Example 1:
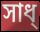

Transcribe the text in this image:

সাধ্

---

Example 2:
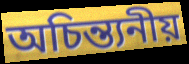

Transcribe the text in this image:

অচিন্ত্যনীয়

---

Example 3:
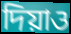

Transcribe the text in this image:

দিয়াও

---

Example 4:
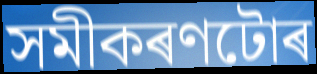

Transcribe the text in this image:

সমীকৰণটোৰ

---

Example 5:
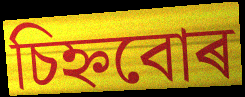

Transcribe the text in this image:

চিহ্নবোৰ